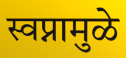
स्वप्नामुळे